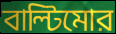
বাল্টিমোর